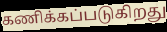
கணிக்கப்படுகிறது